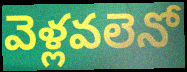
వెళ్లవలెనో